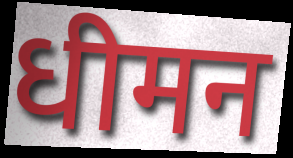
धीमन